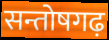
सन्तोषगढ़